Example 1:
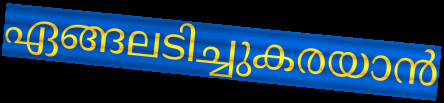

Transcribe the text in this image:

ഏങ്ങലടിച്ചുകരയാൻ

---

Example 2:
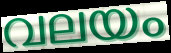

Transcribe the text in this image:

വലയം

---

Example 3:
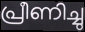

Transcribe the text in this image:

പ്രീണിച്ചു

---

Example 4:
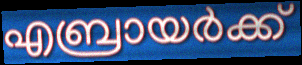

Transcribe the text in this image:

എബ്രായർക്ക്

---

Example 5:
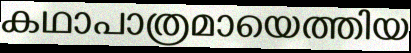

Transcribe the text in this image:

കഥാപാത്രമായെത്തിയ